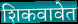
शिकवावेत